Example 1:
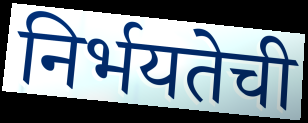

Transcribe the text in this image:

निर्भयतेची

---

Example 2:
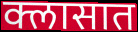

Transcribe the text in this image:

क्लासात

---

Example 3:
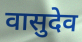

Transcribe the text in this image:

वासुदेव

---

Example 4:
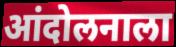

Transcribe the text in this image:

आंदोलनाला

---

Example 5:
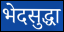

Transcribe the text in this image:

भेदसुद्धा